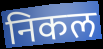
निकल